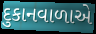
દુકાનવાળાએ